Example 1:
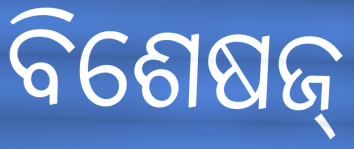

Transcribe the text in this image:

ବିଶେଷଜ୍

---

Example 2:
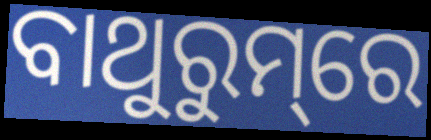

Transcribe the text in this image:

ବାଥୁରୁମ୍‌ରେ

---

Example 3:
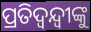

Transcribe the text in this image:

ପ୍ରତିଦ୍ଵନ୍ଦ୍ୱୀଙ୍କୁ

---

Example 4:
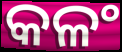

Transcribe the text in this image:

କଳଂ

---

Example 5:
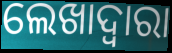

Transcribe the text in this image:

ଲେଖାଦ୍ୱାରା